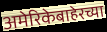
अमेरिकेबाहेरच्या